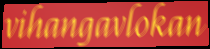
vihangavlokan